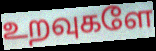
உறவுகளே